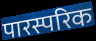
पारस्परिक